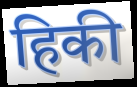
हिकी